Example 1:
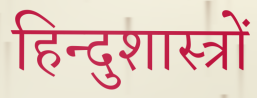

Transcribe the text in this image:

हिन्दुशास्त्रों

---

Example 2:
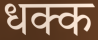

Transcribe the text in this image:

धक्क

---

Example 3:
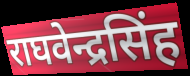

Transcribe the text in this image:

राघवेन्द्रसिंह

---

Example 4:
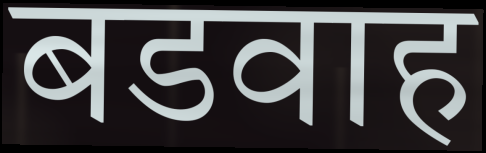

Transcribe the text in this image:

बडवाह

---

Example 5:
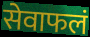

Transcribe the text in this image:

सेवाफलं